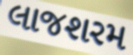
લાજશરમ